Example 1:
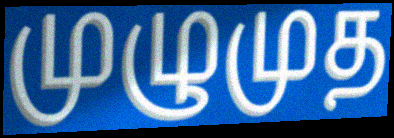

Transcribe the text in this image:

முழுமுத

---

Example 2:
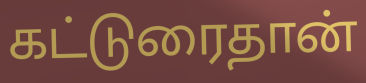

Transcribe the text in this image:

கட்டுரைதான்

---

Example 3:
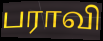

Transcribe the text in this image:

பராவி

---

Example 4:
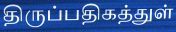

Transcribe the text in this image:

திருப்பதிகத்துள்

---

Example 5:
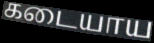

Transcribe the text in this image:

கடையாய